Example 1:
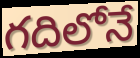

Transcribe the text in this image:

గదిలోనే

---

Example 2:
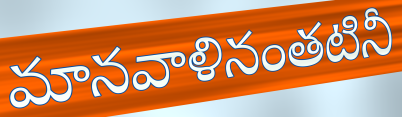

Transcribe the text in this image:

మానవాళినంతటినీ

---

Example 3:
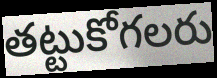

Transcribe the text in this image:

తట్టుకోగలరు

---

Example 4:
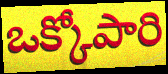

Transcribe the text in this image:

ఒక్కోపారి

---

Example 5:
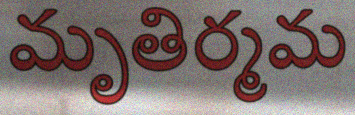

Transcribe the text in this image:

మృతిర్మమ